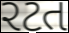
રટત